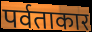
पर्वताकार